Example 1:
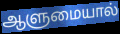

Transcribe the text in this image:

ஆளுமையால்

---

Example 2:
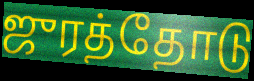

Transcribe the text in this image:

ஜுரத்தோடு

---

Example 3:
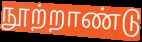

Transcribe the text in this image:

நூற்றாண்டு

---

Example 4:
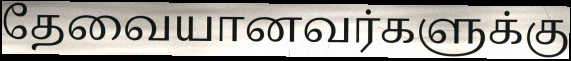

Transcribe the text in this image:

தேவையானவர்களுக்கு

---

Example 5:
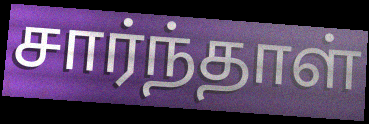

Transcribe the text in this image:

சார்ந்தாள்